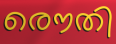
രൌതി